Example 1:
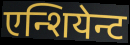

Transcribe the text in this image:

एन्शियेन्ट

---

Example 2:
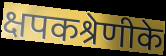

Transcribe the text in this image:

क्षपकश्रेणीके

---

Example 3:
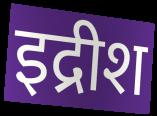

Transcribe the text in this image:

इद्रीश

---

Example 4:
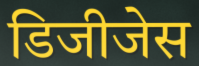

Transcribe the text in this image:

डिजीजेस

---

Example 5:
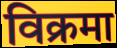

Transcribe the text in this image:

विक्रमा